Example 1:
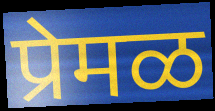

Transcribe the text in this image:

प्रेमळ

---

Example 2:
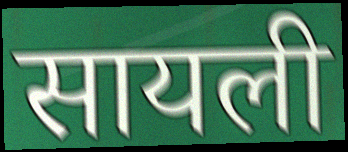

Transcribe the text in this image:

सायली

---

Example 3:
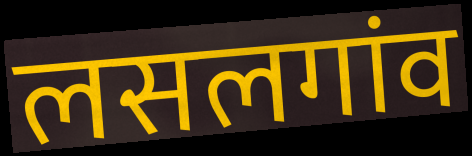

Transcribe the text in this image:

लसलगांव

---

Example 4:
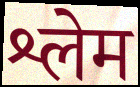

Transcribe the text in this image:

श्लेम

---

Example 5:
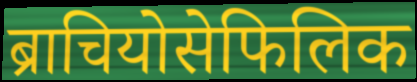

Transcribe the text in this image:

ब्राचियोसेफिलिक